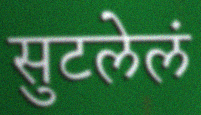
सुटलेलं